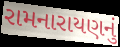
રામનારાયણનું